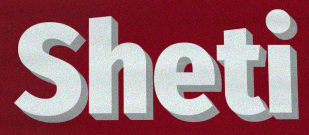
Sheti